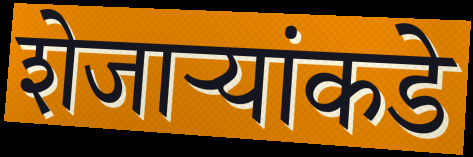
शेजाऱ्यांकडे